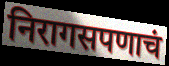
निरागसपणाचं